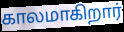
காலமாகிறார்